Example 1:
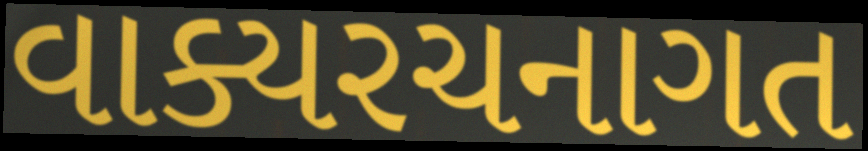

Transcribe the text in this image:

વાક્યરચનાગત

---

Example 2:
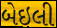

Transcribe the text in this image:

બેઇલી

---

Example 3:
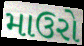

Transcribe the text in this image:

માઉરો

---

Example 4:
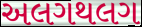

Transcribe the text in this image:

અલગથલગ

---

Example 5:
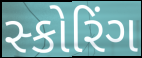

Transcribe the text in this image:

સ્કોરિંગ